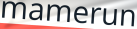
mamerun